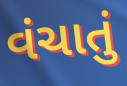
વંચાતું